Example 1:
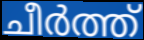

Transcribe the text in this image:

ചീർത്ത്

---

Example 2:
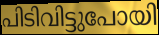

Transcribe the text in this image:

പിടിവിട്ടുപോയി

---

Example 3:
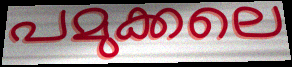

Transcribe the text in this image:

പമുക്കലെ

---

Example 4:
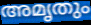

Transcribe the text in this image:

അമൃതും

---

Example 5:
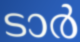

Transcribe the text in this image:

ടാർ